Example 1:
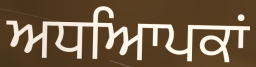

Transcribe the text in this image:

ਅਧਆਿਪਕਾਂ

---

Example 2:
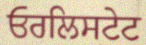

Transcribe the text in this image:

ਓਰਲਿਸਟੇਟ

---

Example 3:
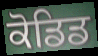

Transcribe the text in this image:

ਕੋਡਿਡ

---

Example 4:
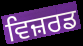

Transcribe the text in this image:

ਵਿਜ਼ਰਡ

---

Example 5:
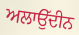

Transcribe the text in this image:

ਅਲਾਉੱਦੀਨ